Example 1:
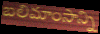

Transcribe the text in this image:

బలిమాంసాన్ని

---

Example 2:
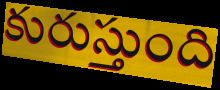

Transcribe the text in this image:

కురుస్తుంది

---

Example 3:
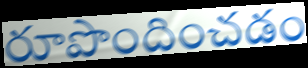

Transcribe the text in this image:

రూపొందించడం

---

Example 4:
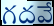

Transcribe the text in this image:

గదవే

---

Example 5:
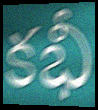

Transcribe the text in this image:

కభీ